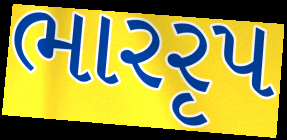
ભારરૃપ